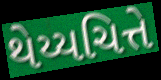
થેય્યચિત્તે